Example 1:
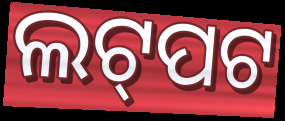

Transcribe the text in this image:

ଲଟ୍‌ପଟ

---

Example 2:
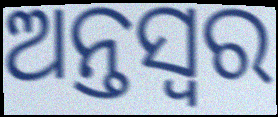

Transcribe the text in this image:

ଅନ୍ତସ୍ୱର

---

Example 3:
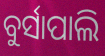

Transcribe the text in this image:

ବୁର୍ସାପାଲି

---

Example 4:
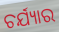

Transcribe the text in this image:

ଚର୍ଯ୍ୟାର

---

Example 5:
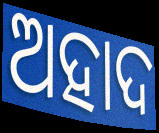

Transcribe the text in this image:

ଅହାଦ